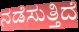
ನಡೆಸುತ್ತಿದೆ